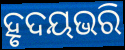
ହୃଦୟଭରି